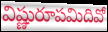
విష్ణురూపమిదివో